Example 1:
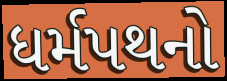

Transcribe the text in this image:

ધર્મપથનો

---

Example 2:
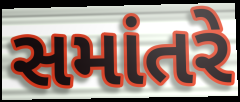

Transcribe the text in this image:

સમાંતરે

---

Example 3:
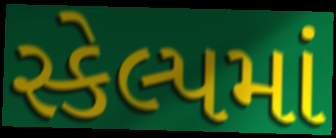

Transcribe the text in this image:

સ્કેલ્પમાં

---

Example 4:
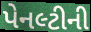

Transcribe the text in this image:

પેનલ્ટીની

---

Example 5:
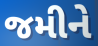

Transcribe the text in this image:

જમીને